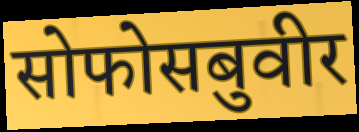
सोफोसबुवीर